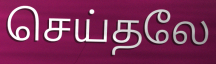
செய்தலே